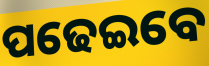
ପଢେଇବେ